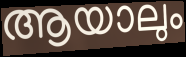
ആയാലും